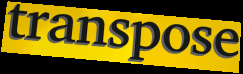
transpose